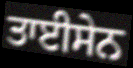
ਤਾਈਸੇਨ